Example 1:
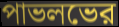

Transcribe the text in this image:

পাভলভের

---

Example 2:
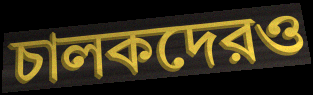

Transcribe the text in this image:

চালকদেরও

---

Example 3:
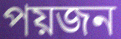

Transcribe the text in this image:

পয়জন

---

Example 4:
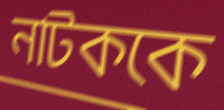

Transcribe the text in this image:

নাটককে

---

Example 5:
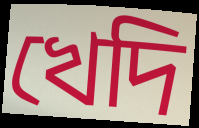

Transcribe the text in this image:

খেদি